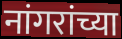
नांगरांच्या